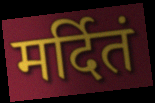
मर्दितं